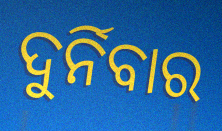
ଦୁର୍ନିବାର